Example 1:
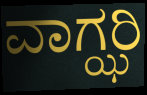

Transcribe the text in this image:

ವಾಗ್ಝರಿ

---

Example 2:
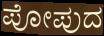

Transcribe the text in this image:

ಪೋಪುದ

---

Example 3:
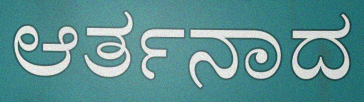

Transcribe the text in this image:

ಆರ್ತನಾದ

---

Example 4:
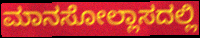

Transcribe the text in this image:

ಮಾನಸೋಲ್ಲಾಸದಲ್ಲಿ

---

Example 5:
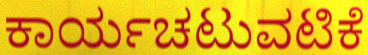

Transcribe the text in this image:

ಕಾರ್ಯಚಟುವಟಿಕೆ